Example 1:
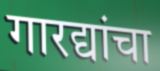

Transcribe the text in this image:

गारद्यांचा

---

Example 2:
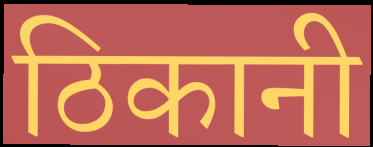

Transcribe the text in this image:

ठिकानी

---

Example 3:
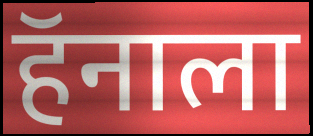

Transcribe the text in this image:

हॅनाला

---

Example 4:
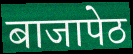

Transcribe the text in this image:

बाजापेठ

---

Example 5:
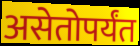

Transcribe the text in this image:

असेतोपर्यंत